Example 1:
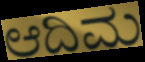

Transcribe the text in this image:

ಆದಿಮ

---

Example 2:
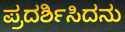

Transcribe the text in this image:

ಪ್ರದರ್ಶಿಸಿದನು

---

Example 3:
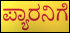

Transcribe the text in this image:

ಪ್ಯಾರನಿಗೆ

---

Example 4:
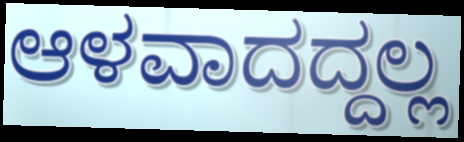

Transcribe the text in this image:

ಆಳವಾದದ್ದಲ್ಲ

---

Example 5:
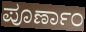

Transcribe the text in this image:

ಪೂರ್ಣಾಂ